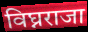
विघ्नराजा